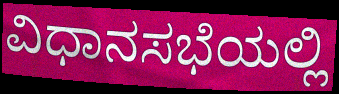
ವಿಧಾನಸಭೆಯಲ್ಲಿ